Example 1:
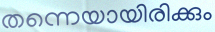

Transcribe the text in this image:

തന്നെയായിരിക്കും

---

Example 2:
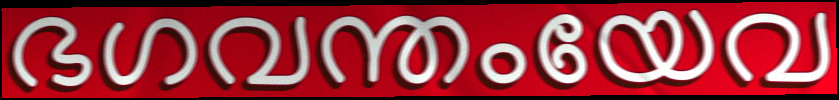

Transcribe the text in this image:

ഭഗവന്തംയേവ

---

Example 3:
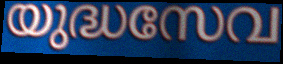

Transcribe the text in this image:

യുദ്ധസേവ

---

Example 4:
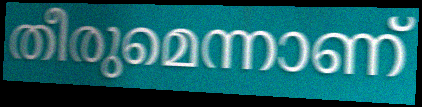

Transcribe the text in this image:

തീരുമെന്നാണ്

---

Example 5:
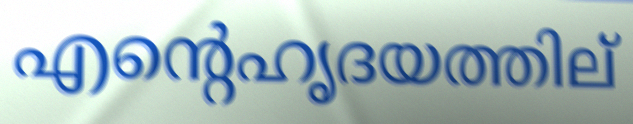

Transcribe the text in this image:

എന്റെഹൃദയത്തില്